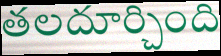
తలదూర్చింది